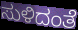
ಸುಳಿದಂತೆ